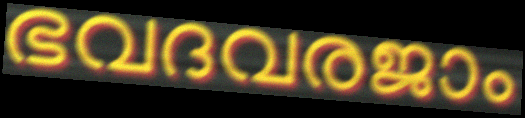
ഭവദവരജാം